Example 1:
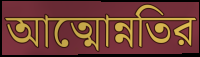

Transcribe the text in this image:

আত্মোন্নতির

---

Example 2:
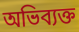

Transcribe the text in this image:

অভিব্যক্ত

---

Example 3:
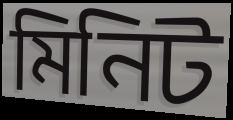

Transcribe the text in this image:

মিনিট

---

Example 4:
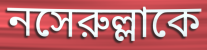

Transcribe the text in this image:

নসেরুল্লাকে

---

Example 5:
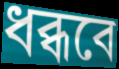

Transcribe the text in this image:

ধব্ধবে